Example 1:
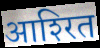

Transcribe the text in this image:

आश्रित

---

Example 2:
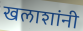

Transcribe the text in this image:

खलाशांनी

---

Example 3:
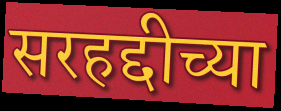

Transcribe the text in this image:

सरहद्दीच्या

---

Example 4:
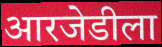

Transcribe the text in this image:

आरजेडीला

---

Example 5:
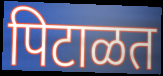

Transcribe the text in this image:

पिटाळत